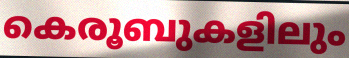
കെരൂബുകളിലും